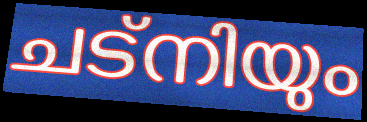
ചട്നിയും